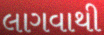
લાગવાથી